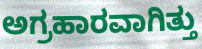
ಅಗ್ರಹಾರವಾಗಿತ್ತು